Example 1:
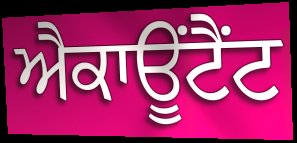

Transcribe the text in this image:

ਐਕਾਊਂਟੈਂਟ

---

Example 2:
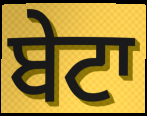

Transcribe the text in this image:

ਬੇਟਾ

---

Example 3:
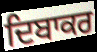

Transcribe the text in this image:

ਦਿਬਾਕਰ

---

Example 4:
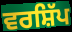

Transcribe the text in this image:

ਵਰਸ਼ਿੱਪ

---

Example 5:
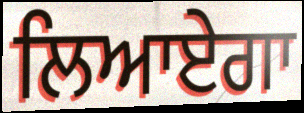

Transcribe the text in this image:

ਲਿਆਏਗਾ